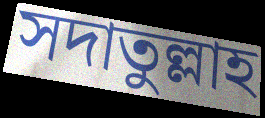
সদাতুল্লাহ